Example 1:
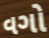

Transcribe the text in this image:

વગો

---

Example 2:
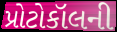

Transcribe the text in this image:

પ્રોટોકૉલની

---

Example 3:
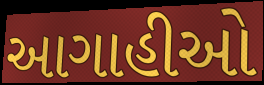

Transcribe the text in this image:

આગાહીઓ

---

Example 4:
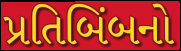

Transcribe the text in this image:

પ્રતિબિંબનો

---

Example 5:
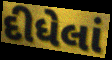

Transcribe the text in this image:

દીધેલાં